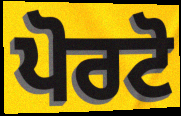
ਪੋਰਟੋ